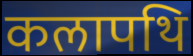
कलापथि